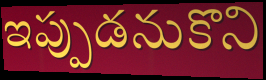
ఇప్పుడనుకొని